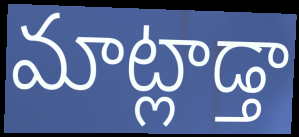
మాట్లాడ్తా